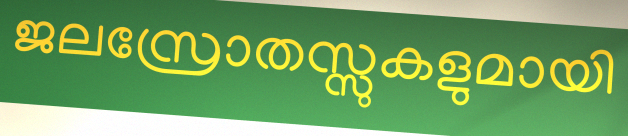
ജലസ്രോതസ്സുകളുമായി